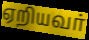
ஏறியவர்